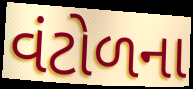
વંટોળના